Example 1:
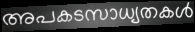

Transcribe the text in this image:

അപകടസാധ്യതകൾ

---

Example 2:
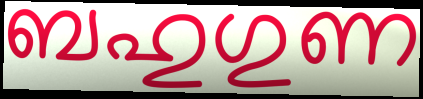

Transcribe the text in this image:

ബഹുഗുണ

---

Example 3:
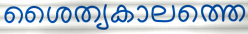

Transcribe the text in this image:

ശൈത്യകാലത്തെ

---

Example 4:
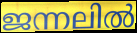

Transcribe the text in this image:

ജന്നലിൽ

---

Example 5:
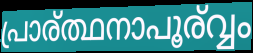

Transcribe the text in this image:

പ്രാര്ത്ഥനാപൂര്വ്വം